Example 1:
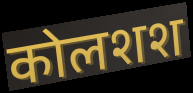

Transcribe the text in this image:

कोलशश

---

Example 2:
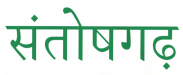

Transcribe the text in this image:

संतोषगढ़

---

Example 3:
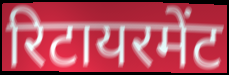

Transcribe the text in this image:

रिटायरमेंट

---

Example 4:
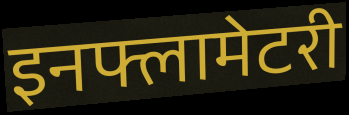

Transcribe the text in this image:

इनफ्लामेटरी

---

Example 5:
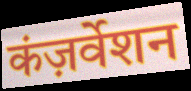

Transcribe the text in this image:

कंज़र्वेशन